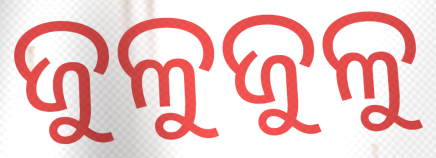
ଜୁଳୁଜୁଳୁ